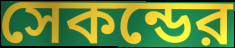
সেকন্ডের